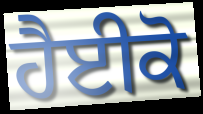
ਹੈਈਕੋ